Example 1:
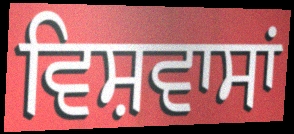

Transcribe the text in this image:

ਵਿਸ਼ਵਾਸਾਂ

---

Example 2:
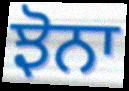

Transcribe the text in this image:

ਝੋਨਾ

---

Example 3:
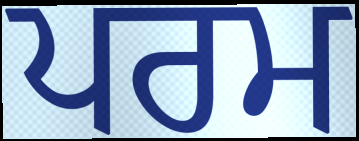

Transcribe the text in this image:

ਪਰਮ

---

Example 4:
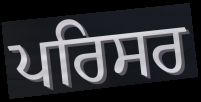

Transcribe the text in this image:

ਪਰਿਸਰ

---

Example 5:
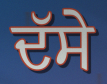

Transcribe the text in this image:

ਦੱਸੇ